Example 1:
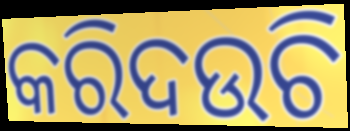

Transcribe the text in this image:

କରିଦଉଚି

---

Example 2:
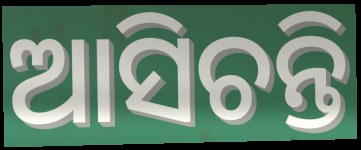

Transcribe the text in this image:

ଆସିଚନ୍ତି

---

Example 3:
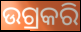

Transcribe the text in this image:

ଉଗ୍ରକରି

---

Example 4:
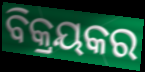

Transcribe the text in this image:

ବିକ୍ରୟକର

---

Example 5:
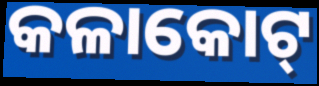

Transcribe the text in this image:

କଳାକୋଟ୍